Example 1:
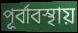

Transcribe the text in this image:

পূর্বাবস্থায়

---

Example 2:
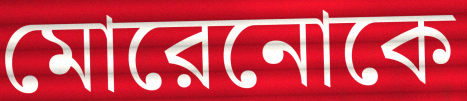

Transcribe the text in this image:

মোরেনোকে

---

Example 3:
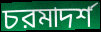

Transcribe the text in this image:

চরমাদর্শ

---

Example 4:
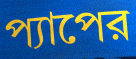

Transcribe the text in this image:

প্যাপের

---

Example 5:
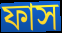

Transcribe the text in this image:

ফাস